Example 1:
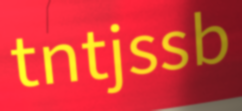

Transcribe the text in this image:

tntjssb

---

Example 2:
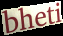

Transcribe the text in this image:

bheti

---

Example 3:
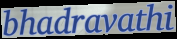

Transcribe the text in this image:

bhadravathi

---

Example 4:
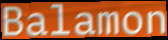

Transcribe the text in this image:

Balamon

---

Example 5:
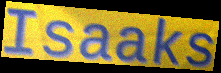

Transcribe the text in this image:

Isaaks